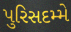
પુરિસદમ્મે